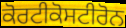
ਕੋਰਟੀਕੋਸਟੀਰੋਨ